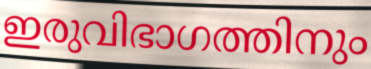
ഇരുവിഭാഗത്തിനും